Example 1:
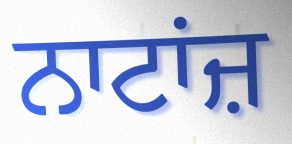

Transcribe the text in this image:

ਨਾਟਾਂਜ਼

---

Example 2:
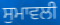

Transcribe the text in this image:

ਸੁਮਾਵਲੀ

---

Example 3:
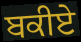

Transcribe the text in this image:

ਬਕੀਏ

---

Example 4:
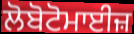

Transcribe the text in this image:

ਲੋਬੋਟੋਮਾਈਜ਼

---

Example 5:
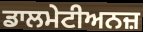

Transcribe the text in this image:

ਡਾਲਮੇਟੀਅਨਜ਼